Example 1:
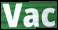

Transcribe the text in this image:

Vac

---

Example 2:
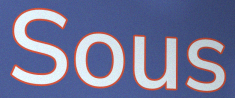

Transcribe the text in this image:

Sous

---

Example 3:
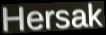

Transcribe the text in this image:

Hersak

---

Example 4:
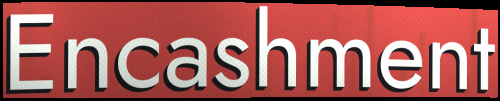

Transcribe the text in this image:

Encashment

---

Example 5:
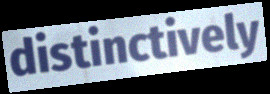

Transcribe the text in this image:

distinctively